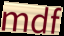
mdf